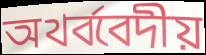
অথর্ববেদীয়